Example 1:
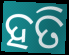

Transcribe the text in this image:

ହତି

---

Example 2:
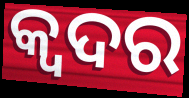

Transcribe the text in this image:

କ୍ୱଦର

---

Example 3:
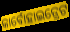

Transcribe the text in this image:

କାର୍ବୋହାଇଡ୍ରେଟ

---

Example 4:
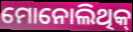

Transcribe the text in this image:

ମୋନୋଲିଥିକ୍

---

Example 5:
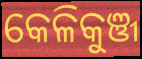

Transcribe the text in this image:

କେଳିକୁଞ୍ଜ